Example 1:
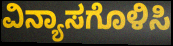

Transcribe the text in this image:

ವಿನ್ಯಾಸಗೊಳಿಸಿ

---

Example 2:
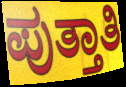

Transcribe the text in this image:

ಪುತ್ತಾತಿ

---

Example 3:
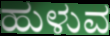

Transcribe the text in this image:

ಹುಳುವ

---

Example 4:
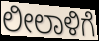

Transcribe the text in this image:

ಲೀಲಾಳಿಗೆ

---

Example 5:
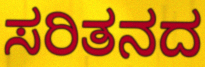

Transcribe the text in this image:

ಸರಿತನದ